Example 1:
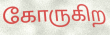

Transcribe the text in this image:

கோருகிற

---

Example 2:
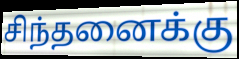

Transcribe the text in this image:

சிந்தனைக்கு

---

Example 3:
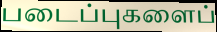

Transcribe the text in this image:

படைப்புகளைப்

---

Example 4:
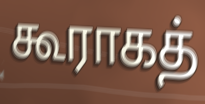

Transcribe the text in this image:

கூராகத்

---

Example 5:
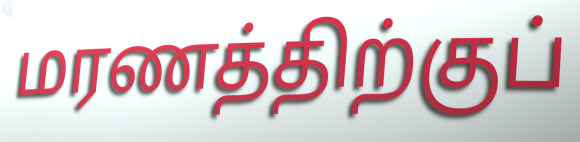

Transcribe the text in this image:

மரணத்திற்குப்